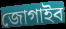
জোগাইব